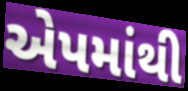
એપમાંથી